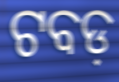
ଟବଡ଼